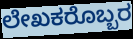
ಲೇಖಕರೊಬ್ಬರ